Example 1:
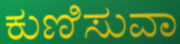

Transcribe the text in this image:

ಕುಣಿಸುವಾ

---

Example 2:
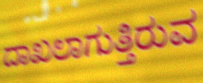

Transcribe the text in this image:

ದಾಖಲಾಗುತ್ತಿರುವ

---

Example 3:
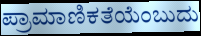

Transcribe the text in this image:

ಪ್ರಾಮಾಣಿಕತೆಯೆಂಬುದು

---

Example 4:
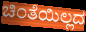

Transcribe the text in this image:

ಚಿಂತೆಯಿಲ್ಲದ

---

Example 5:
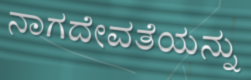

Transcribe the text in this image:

ನಾಗದೇವತೆಯನ್ನು